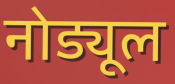
नोड्यूल